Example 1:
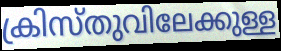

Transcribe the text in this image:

ക്രിസ്തുവിലേക്കുള്ള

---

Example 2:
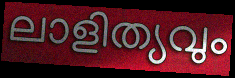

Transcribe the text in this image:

ലാളിത്യവും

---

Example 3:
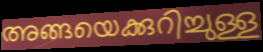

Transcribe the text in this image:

അങ്ങയെക്കുറിച്ചുള്ള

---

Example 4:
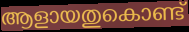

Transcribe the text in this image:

ആളായതുകൊണ്ട്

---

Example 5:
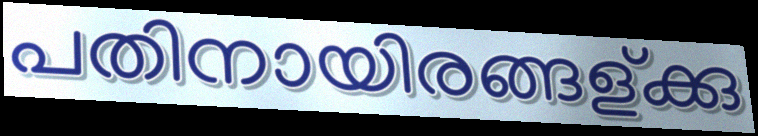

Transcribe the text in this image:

പതിനായിരങ്ങള്ക്കു